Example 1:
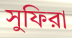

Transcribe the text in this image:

সুফিরা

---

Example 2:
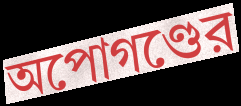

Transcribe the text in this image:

অপোগণ্ডের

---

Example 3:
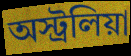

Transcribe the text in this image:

অস্ট্রলিয়া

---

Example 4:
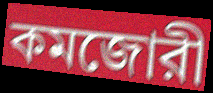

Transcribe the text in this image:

কমজোরী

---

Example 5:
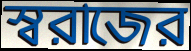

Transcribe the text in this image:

স্বরাজের